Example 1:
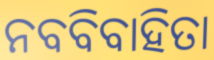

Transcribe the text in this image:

ନବବିବାହିତା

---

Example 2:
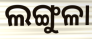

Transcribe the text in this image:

ଲଙ୍ଗୁଳା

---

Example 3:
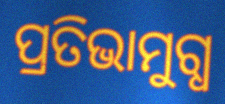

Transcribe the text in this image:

ପ୍ରତିଭାମୁଗ୍ଧ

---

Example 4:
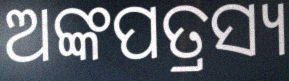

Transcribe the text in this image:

ଅଙ୍କପତ୍ରସ୍ୟ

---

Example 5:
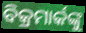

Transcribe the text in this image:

ବିକ୍ରମାର୍କଙ୍କୁ